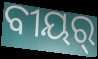
ବୀୟର୍